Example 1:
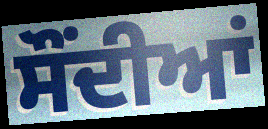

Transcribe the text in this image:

ਸੌਂਦੀਆਂ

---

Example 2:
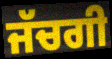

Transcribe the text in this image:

ਜੱਚਗੀ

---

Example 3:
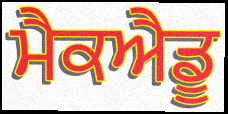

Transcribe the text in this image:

ਮੈਕਐਡੂ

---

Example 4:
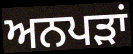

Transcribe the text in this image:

ਅਨਪੜਾਂ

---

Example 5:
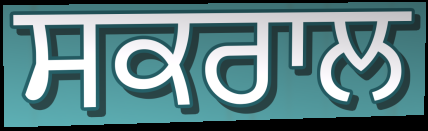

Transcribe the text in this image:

ਸਕਰਾਲ